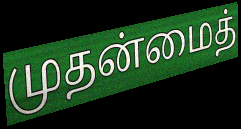
முதன்மைத்